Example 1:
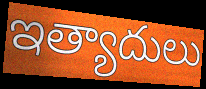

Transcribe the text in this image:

ఇత్యాదులు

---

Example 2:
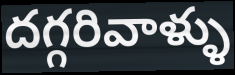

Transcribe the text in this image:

దగ్గరివాళ్ళు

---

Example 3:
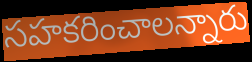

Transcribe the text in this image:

సహకరించాలన్నారు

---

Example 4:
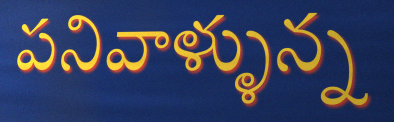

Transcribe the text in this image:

పనివాళ్ళున్న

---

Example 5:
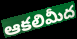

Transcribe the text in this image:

ఆకలిమీద